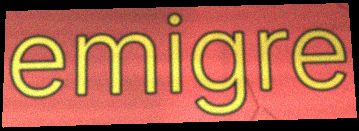
emigre